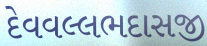
દેવવલ્લભદાસજી